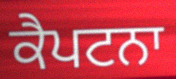
ਕੈਪਟਨਾ